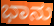
ಭಾನು